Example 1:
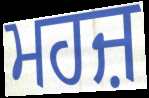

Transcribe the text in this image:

ਮਹਜ਼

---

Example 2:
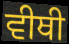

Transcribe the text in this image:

ਵੀਥੀ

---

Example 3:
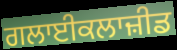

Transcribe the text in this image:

ਗਲਾਈਕਲਾਜ਼ੀਡ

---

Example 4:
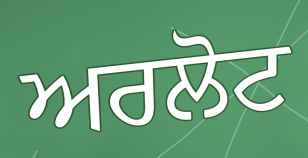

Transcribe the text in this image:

ਅਰਲੋਟ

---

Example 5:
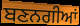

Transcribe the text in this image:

ਬਣਨਗੀਆਂ